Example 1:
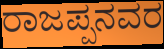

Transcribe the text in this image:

ರಾಜಪ್ಪನವರ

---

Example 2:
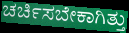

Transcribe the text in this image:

ಚರ್ಚಿಸಬೇಕಾಗಿತ್ತು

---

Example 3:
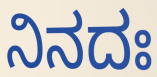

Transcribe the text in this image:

ನಿನದಃ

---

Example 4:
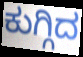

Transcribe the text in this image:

ಕುಗ್ಗಿದ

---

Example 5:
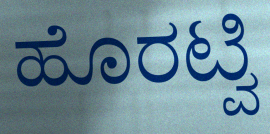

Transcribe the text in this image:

ಹೊರಟ್ವಿ